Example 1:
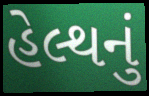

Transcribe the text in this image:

હેલ્થનું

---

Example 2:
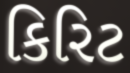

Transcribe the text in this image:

કિરિટ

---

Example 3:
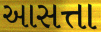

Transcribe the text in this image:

આસત્તા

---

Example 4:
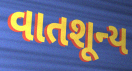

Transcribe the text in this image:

વાતશૂન્ય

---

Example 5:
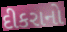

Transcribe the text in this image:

દીકરાનો